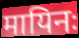
मायिनः